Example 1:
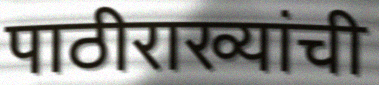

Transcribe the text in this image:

पाठीराख्यांची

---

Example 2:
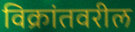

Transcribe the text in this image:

विक्रांतवरील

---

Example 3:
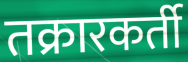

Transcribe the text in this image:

तक्रारकर्ती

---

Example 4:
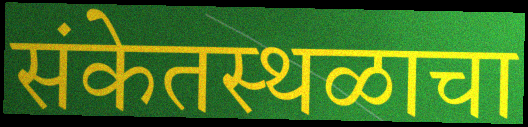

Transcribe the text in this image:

संकेतस्थळाचा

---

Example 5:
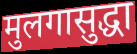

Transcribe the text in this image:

मुलगासुद्धा